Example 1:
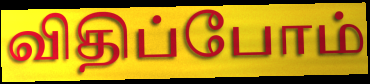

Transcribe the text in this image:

விதிப்போம்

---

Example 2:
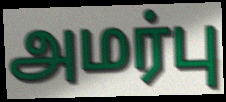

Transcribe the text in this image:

அமர்பு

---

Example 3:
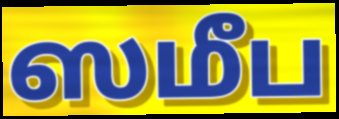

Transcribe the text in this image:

ஸமீப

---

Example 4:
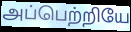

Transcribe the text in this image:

அப்பெற்றியே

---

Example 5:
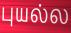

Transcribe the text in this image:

புயல்ல